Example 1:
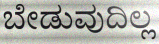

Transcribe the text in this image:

ಬೇಡುವುದಿಲ್ಲ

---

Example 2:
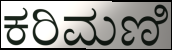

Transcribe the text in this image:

ಕರಿಮಣಿ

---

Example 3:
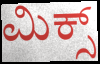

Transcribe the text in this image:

ಮಿಕ್ಸ್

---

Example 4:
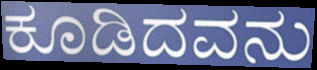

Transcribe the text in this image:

ಕೂಡಿದವನು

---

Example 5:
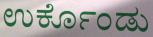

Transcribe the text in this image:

ಉರ್ಕೊಂಡು